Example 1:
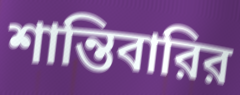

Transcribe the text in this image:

শান্তিবারির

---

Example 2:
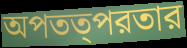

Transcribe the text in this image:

অপতত্পরতার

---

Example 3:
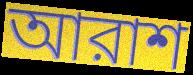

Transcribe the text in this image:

আরাশ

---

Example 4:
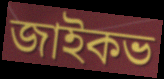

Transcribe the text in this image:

জাইকভ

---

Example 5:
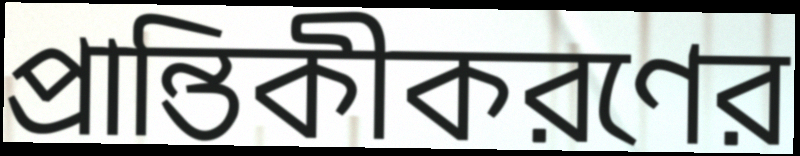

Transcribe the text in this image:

প্রান্তিকীকরণের